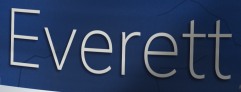
Everett